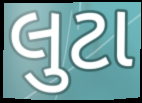
લુટા